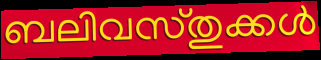
ബലിവസ്തുക്കൾ